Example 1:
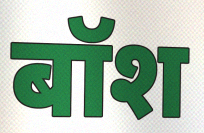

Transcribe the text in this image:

बॉश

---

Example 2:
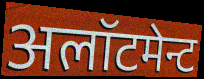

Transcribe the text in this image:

अलॉटमेन्ट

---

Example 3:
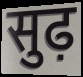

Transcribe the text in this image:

सुढ़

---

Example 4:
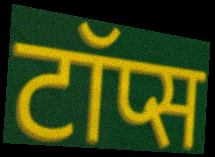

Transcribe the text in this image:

टॉप्स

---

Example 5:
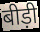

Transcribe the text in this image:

बीड़ी